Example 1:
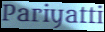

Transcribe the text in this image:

Pariyatti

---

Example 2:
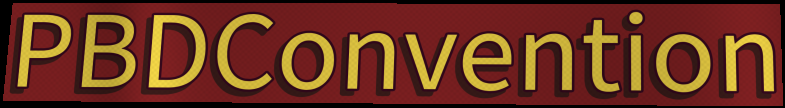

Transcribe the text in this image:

PBDConvention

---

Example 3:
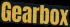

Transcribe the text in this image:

Gearbox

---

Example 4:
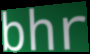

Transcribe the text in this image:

bhr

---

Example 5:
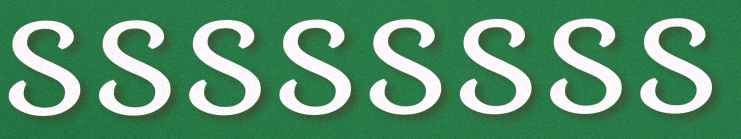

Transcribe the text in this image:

ssssssss